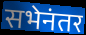
सभेनंतर